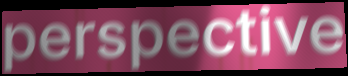
perspective